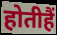
होतीहैं